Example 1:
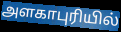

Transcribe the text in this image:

அளகாபுரியில்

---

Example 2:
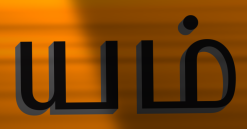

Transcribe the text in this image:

யம்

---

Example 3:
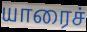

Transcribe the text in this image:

யாரைச்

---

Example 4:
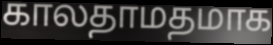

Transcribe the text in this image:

காலதாமதமாக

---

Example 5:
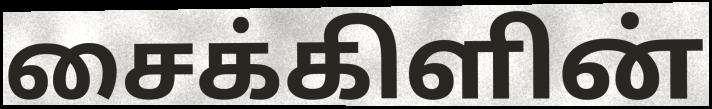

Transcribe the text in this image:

சைக்கிளின்